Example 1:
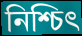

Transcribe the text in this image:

নিশ্চিৎ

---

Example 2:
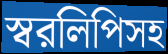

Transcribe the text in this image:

স্বরলিপিসহ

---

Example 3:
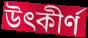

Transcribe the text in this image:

উৎকীর্ণ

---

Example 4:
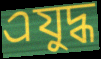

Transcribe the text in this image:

এযুদ্ধ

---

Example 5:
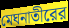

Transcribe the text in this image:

মেঘনাতীরের